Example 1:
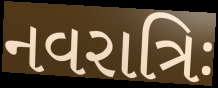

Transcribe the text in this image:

નવરાત્રિઃ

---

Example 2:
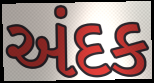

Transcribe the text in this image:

અંદક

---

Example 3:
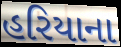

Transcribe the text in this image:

હરિયાના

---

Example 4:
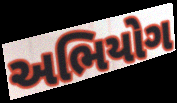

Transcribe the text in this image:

અભિયોગ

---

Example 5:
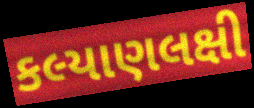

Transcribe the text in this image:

કલ્યાણલક્ષી